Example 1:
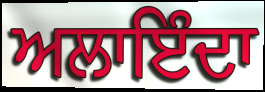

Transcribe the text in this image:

ਅਲਾਇੰਦਾ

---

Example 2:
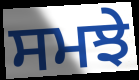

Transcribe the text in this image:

ਸਮਝੇ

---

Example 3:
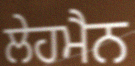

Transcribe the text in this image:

ਲੇਹਮੈਨ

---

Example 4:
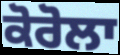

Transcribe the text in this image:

ਕੋਰੋਲਾ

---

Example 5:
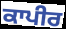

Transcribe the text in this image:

ਕਾਪੀਰ